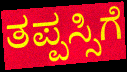
ತಪ್ಪಸ್ಸಿಗೆ